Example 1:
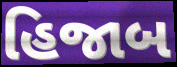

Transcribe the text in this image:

હિજાબ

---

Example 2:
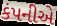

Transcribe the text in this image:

કંપનીએ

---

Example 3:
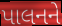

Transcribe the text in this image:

પાલનને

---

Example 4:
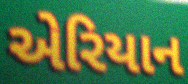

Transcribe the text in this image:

એરિયાન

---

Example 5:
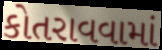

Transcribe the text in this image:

કોતરાવવામાં